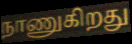
நாணுகிறது